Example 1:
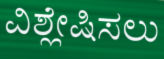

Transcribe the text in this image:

ವಿಶ್ಲೇಷಿಸಲು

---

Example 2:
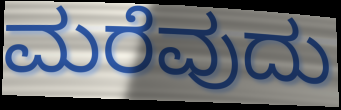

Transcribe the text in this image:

ಮರೆವುದು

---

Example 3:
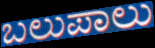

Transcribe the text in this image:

ಬಲುಪಾಲು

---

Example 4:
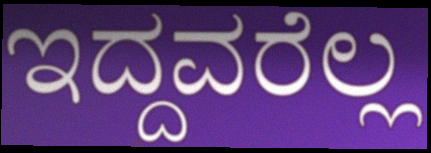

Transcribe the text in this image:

ಇದ್ದವರೆಲ್ಲ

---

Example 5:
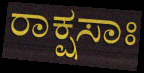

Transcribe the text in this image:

ರಾಕ್ಷಸಾಃ